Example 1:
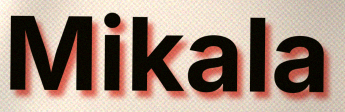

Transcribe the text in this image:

Mikala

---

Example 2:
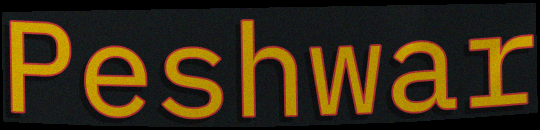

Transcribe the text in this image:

Peshwar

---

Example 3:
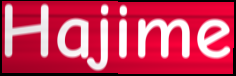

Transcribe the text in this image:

Hajime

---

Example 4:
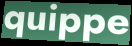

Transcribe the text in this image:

quippe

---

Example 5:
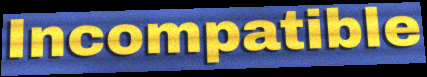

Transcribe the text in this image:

Incompatible